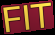
FIT